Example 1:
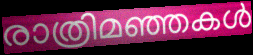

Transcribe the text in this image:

രാത്രിമഞ്ഞകൾ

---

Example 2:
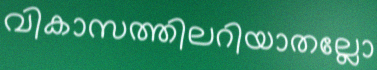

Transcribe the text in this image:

വികാസത്തിലറിയാതല്ലോ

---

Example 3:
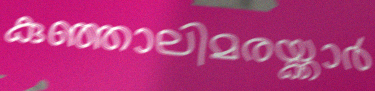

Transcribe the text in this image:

കുഞ്ഞാലിമരയ്ക്കാർ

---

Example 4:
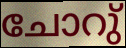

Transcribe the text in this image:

ചോറു്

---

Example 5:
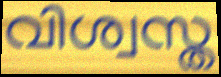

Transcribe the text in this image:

വിശ്വസ്ത